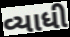
વ્યાધી